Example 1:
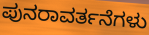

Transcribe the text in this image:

ಪುನರಾವರ್ತನೆಗಳು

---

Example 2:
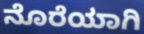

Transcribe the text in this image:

ನೊರೆಯಾಗಿ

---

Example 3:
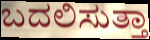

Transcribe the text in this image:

ಬದಲಿಸುತ್ತಾ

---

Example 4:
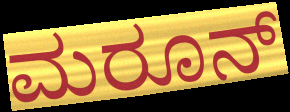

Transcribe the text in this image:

ಮರೂನ್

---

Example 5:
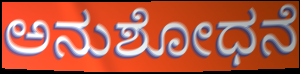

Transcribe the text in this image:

ಅನುಶೋಧನೆ